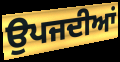
ਉਪਜਦੀਆਂ